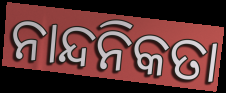
ନାନ୍ଦନିକତା